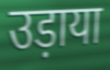
उड़ाया